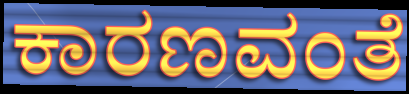
ಕಾರಣವಂತೆ